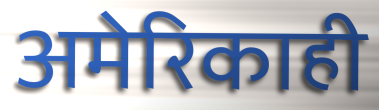
अमेरिकाही